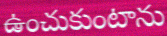
ఉంచుకుంటాను